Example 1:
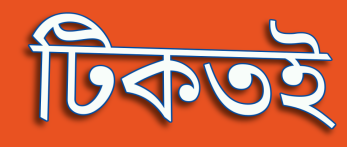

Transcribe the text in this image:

টিকতই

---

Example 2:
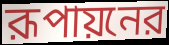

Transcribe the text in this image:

রূপায়নের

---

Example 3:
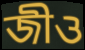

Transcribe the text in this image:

জীও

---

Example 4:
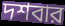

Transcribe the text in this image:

দশবার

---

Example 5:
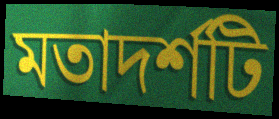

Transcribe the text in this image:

মতাদর্শটি